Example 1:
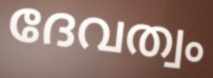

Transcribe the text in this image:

ദേവത്വം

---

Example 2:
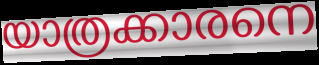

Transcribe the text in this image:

യാത്രക്കാരനെ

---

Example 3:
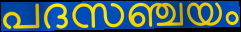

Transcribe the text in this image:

പദസഞ്ചയം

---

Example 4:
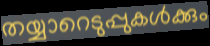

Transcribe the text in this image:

തയ്യാറെടുപ്പുകൾക്കും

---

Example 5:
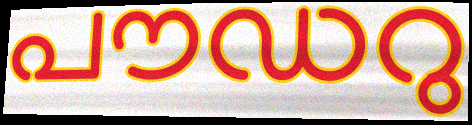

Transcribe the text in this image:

പൗഡറു